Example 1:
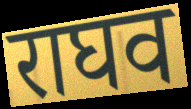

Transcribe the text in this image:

राघव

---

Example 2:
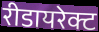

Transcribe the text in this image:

रीडायरेक्ट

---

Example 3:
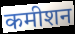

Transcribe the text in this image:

कमीशन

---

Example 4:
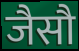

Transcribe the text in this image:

जैसौ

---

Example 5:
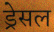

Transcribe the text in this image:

ड्रेसल